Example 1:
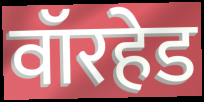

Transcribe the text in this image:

वॉरहेड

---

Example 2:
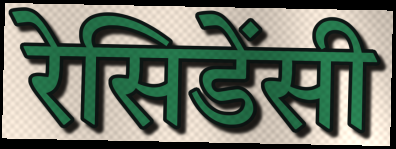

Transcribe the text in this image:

रेसिडेंसी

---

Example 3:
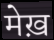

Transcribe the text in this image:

मेख़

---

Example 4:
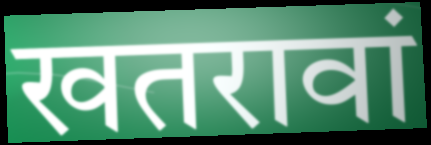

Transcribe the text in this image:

खतरावां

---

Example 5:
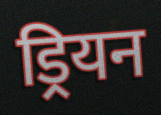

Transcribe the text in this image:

ड्रियन